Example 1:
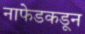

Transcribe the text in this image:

नाफेडकडून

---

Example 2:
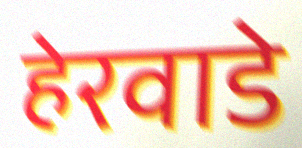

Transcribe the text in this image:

हेरवाडे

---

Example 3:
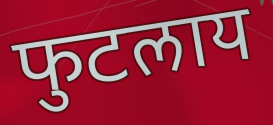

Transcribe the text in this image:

फुटलाय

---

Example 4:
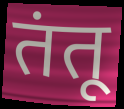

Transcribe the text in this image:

तंतू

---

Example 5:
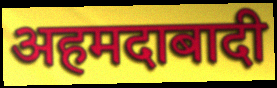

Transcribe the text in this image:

अहमदाबादी